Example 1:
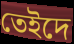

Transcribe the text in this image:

তেইদে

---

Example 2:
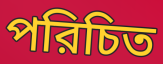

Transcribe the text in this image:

পরিচিত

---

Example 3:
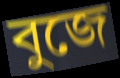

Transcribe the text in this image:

বুজে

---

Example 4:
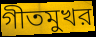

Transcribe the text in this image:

গীতমুখর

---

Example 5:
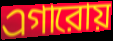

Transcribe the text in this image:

এগারোয়